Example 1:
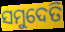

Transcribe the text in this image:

ସମୁଦେତି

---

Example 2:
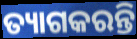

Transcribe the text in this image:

ତ୍ୟାଗକରନ୍ତି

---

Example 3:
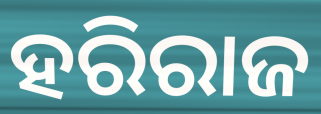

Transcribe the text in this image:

ହରିରାଜ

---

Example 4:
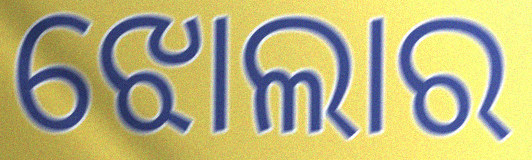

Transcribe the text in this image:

ଝୋଲାର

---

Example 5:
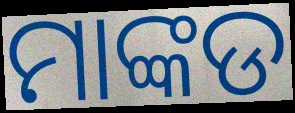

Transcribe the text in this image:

ମାଙ୍କଡ